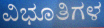
ವಿಭೂತಿಗಳ